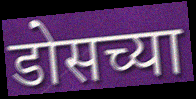
डोसच्या